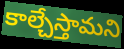
కాల్చేస్తామని